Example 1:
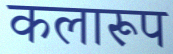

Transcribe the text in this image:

कलारूप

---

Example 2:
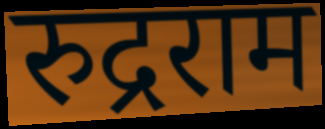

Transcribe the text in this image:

रुद्रराम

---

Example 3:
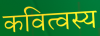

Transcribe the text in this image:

कवित्वस्य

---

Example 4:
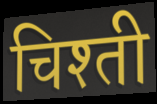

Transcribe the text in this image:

चिश्ती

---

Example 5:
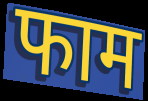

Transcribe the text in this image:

फाम